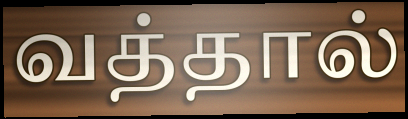
வத்தால்